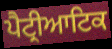
ਪੈਟ੍ਰੀਆਟਿਕ